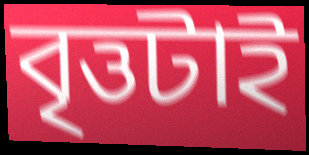
বৃত্তটাই